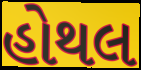
હોથલ